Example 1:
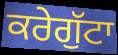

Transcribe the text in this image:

ਕਰੇਗੁੱਟਾ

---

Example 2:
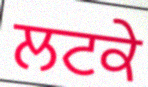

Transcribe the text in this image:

ਲਟਕੇ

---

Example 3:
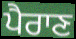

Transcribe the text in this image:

ਪੈਰਾਣ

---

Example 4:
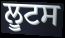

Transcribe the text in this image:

ਲੂਟਸ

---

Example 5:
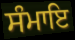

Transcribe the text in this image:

ਸੰਮਾਇ